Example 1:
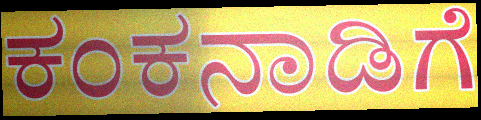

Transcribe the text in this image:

ಕಂಕನಾಡಿಗೆ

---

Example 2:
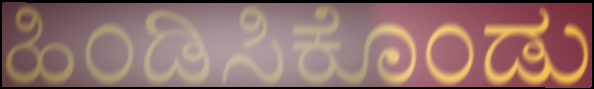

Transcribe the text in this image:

ಹಿಂಡಿಸಿಕೊಂಡು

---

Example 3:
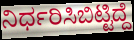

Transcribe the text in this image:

ನಿರ್ಧರಿಸಿಬಿಟ್ಟಿದ್ದೆ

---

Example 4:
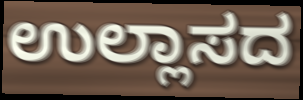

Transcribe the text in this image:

ಉಲ್ಲಾಸದ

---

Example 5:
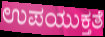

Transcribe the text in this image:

ಉಪಯುಕ್ತತೆ